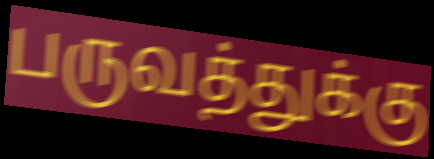
பருவத்துக்கு